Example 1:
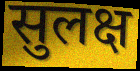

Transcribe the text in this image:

सुलक्ष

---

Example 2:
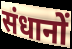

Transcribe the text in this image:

संधानों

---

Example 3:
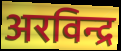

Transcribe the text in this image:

अरविन्द्र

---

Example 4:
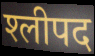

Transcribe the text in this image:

श्लीपद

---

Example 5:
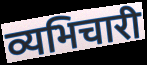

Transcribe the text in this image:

व्यभिचारी